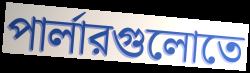
পার্লারগুলোতে